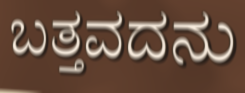
ಬತ್ತವದನು